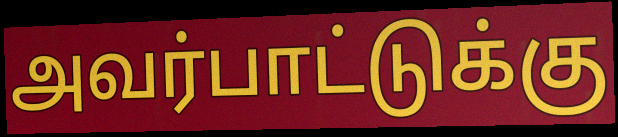
அவர்பாட்டுக்கு